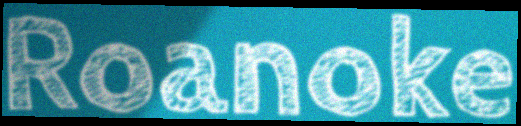
Roanoke